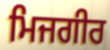
ਮਿਜਗੀਰ